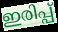
ഇരിപ്പ്